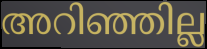
അറിഞ്ഞില്ല